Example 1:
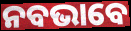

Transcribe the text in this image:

ନବଭାବେ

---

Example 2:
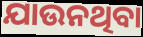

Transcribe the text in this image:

ଯାଉନଥିବା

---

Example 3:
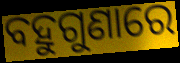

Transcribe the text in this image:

ବହୁଗୁଣାରେ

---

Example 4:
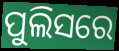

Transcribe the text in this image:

ପୁଲିସରେ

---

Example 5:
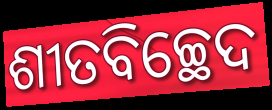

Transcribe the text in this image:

ଶୀତବିଚ୍ଛେଦ